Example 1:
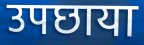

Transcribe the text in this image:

उपछाया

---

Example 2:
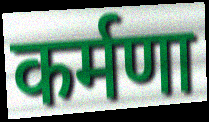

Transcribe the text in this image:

कर्मणा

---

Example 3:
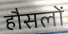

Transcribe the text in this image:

हौसलों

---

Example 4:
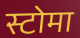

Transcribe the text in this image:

स्टोमा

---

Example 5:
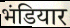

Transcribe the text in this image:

भंडियार